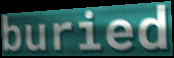
buried